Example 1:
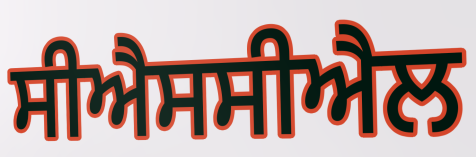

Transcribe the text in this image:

ਸੀਐਸਸੀਐਲ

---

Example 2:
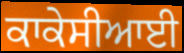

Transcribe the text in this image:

ਕਾਕੇਸੀਆਈ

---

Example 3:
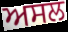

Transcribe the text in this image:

ਅਸਲ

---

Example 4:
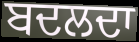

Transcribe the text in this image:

ਬਦਲਦਾ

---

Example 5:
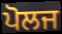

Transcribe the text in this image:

ਪੋਲਜ